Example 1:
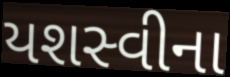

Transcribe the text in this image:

યશસ્વીના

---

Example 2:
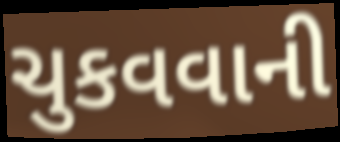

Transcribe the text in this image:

ચુકવવાની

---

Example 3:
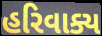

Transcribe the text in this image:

હરિવાક્ય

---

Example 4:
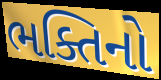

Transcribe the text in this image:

ભક્તિનો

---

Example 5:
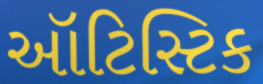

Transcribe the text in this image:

ઑટિસ્ટિક